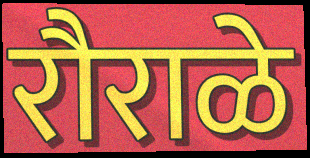
रौराळे